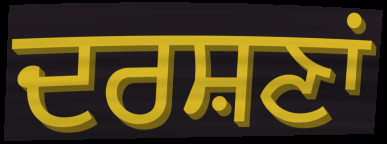
ਦਰਸ਼ਣਾਂ